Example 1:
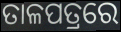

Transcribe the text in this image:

ତାଳପତ୍ରରେ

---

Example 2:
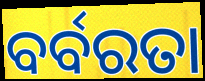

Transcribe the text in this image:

ବର୍ବରତା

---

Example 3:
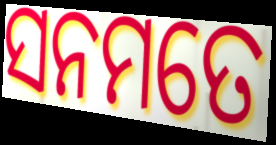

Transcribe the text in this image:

ସନମତେ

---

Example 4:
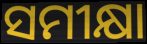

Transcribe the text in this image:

ସମୀକ୍ଷା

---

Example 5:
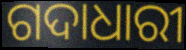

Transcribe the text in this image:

ଗଦାଧାରୀ